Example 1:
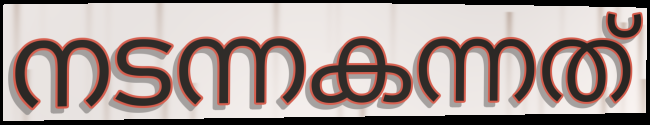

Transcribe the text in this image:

നടന്നകന്നത്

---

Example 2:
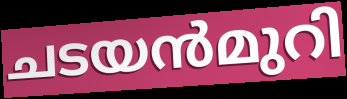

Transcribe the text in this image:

ചടയൻമുറി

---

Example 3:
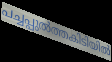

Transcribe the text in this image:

പച്ചപ്പുൽത്തകിടിയിൽ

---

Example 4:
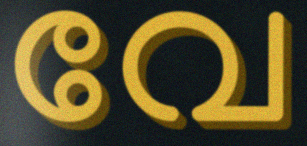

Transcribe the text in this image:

വേ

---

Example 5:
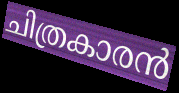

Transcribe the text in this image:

ചിത്രകാരൻ